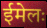
ईमेलः